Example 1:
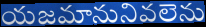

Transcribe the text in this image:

యజమానునివలెను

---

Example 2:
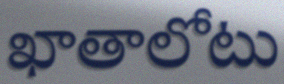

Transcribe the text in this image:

ఖాతాలోటు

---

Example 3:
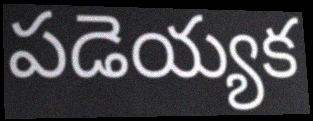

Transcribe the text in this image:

పడెయ్యక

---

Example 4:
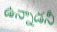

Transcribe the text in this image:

ఉన్నాడనీ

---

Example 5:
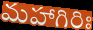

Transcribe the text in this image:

మహాగిరిః